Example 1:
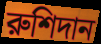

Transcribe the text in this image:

রুশিদান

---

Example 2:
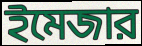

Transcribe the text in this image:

ইমেজার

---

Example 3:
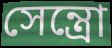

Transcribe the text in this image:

সেন্ত্রো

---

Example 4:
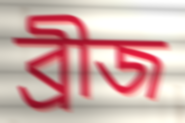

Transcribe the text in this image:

ব্রীজ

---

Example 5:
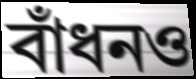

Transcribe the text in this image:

বাঁধনও